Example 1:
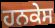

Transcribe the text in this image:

ਹਨਕੇਸ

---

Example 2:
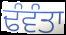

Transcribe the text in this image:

ਢੰਵੰਤਾ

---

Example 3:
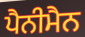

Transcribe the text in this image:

ਪੈਨੀਮੈਨ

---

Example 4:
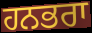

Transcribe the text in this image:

ਹਨਭਰਾ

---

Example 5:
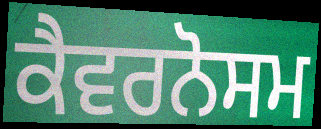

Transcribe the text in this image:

ਕੈਵਰਨੋਸਮ